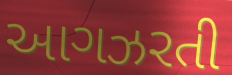
આગઝરતી